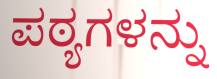
ಪಠ್ಯಗಳನ್ನು